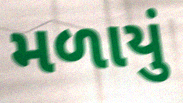
મળાયું